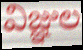
విజ్ఞుల